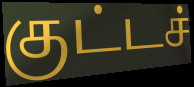
குட்டச்